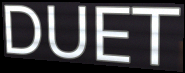
DUET